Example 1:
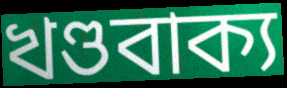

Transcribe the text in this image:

খণ্ডবাক্য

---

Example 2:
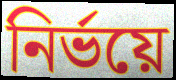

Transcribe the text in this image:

নিৰ্ভয়ে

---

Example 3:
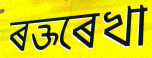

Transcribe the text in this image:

ৰক্তৰেখা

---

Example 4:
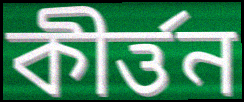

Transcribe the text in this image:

কীৰ্ত্তন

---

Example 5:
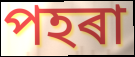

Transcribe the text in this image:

পহৰা